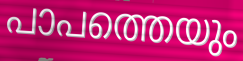
പാപത്തെയും